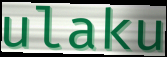
ulaku